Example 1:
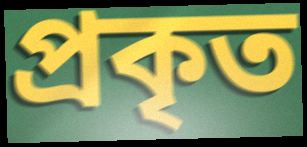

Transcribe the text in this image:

প্ৰকৃত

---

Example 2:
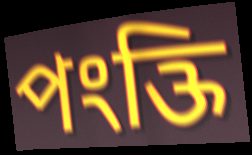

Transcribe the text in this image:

পংক্তি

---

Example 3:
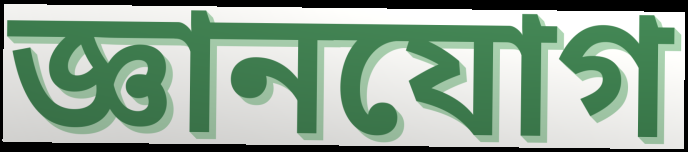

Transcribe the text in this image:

জ্ঞানযোগ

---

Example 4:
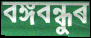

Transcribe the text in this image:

বঙ্গবন্ধুৰ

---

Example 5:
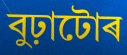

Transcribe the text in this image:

বুঢ়াটোৰ